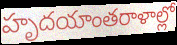
హృదయాంతరాళాల్లో